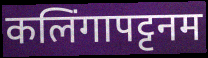
कलिंगापट्टनम